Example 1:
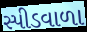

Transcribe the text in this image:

સ્પીડવાળા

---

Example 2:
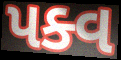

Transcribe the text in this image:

પક્વ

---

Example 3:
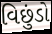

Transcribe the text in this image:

વિછુંડો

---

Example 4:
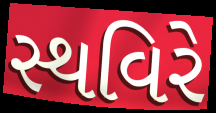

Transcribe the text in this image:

સ્થવિરે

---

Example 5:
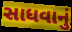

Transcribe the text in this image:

સાધવાનું